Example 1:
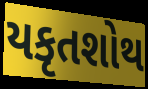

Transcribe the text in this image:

યકૃતશોથ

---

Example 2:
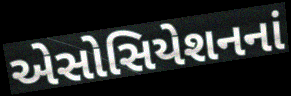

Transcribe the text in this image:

એસોસિયેશનનાં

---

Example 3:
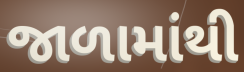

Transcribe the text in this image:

જાળામાંથી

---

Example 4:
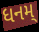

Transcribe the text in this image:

ધનમ્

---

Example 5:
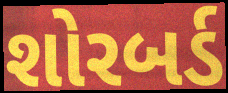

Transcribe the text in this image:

શોરબર્ડ